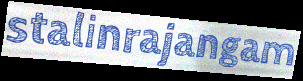
stalinrajangam